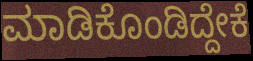
ಮಾಡಿಕೊಂಡಿದ್ದೇಕೆ